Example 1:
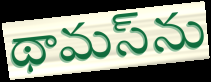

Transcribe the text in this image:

థామస్‌ను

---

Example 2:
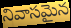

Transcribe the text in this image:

నివాసమైన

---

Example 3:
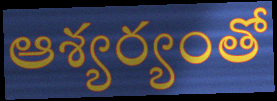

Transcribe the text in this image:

ఆశ్యర్యంతో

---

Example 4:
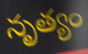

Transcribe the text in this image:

నృత్యం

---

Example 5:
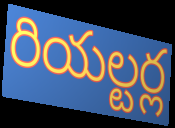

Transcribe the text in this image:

రియల్టర్ల